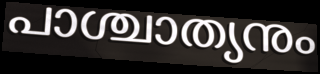
പാശ്ചാത്യനും